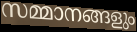
സമ്മാനങ്ങളും